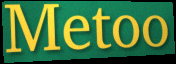
Metoo